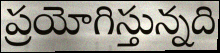
ప్రయోగిస్తున్నది